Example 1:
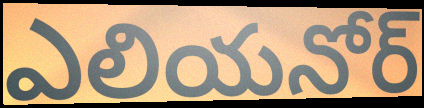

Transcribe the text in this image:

ఎలియనోర్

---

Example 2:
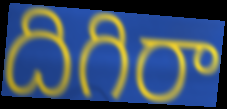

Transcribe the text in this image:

దిగిరా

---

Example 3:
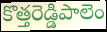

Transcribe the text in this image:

కొత్తరెడ్డిపాలెం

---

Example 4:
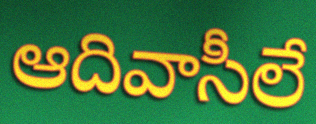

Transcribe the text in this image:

ఆదివాసీలే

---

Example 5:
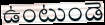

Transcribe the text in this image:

ఉంటుండె